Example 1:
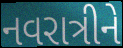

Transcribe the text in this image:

નવરાત્રીને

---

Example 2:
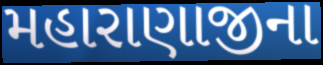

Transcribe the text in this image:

મહારાણાજીના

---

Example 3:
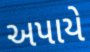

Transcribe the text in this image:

અપાયે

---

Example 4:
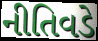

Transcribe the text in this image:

નીતિવડે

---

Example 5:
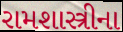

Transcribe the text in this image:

રામશાસ્ત્રીના